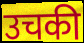
उचकी